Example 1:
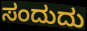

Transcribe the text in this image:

ಸಂದುದು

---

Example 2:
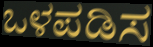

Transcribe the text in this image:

ಒಳಪಡಿಸ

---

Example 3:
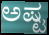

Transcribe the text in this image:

ಅಷ್ಟ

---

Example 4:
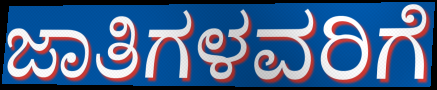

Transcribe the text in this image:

ಜಾತಿಗಳವರಿಗೆ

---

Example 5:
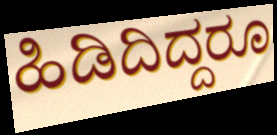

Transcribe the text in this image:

ಹಿಡಿದಿದ್ದರೂ